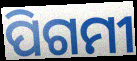
ପିଗମୀ